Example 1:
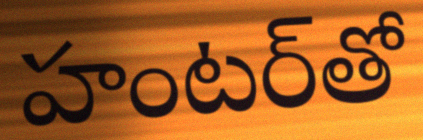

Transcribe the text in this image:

హంటర్‌తో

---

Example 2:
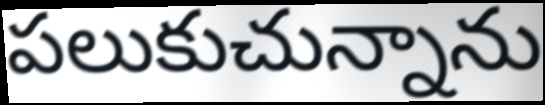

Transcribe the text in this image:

పలుకుచున్నాను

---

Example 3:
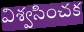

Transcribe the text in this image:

విశ్వసించక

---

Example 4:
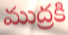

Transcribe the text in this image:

ముద్రకి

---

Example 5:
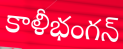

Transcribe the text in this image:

కాళీభంగన్